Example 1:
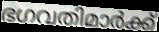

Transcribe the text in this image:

ഭഗവതിമാർക്ക്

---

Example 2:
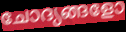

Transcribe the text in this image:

ചോദ്യങ്ങളോ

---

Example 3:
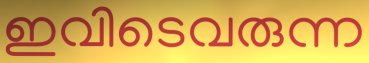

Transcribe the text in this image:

ഇവിടെവരുന്ന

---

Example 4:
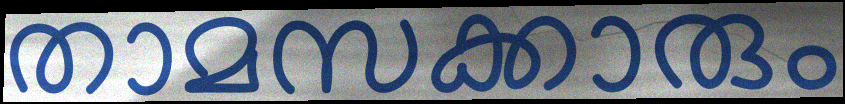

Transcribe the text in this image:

താമസക്കാരും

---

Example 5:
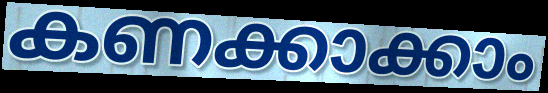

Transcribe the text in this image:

കണക്കാക്കാം